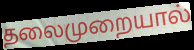
தலைமுறையால்